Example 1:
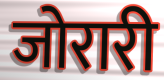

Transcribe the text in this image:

जोरारी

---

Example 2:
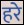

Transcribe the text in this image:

हरे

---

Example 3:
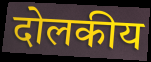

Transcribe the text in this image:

दोलकीय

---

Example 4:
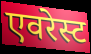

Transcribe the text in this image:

एवरेस्ट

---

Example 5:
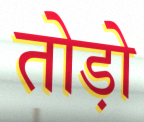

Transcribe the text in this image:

तोड़ो